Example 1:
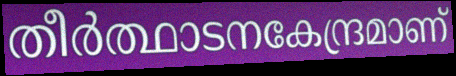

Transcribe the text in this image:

തീർത്ഥാടനകേന്ദ്രമാണ്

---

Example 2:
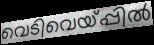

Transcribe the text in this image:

വെടിവെയ്പ്പിൽ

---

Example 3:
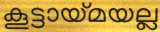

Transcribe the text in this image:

കൂട്ടായ്മയല്ല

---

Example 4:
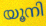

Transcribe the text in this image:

യൂനി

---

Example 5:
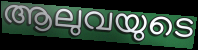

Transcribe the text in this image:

ആലുവയുടെ